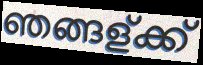
ഞങ്ങള്ക്ക്